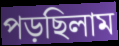
পড়ছিলাম